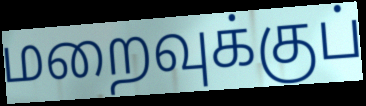
மறைவுக்குப்